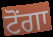
ਟੋਂਗਾ